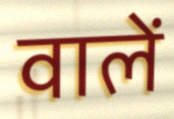
वालें